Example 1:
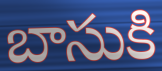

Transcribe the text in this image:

బాసుకి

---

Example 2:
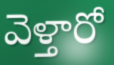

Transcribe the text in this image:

వెళ్తారో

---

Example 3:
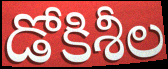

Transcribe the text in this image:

డోకిశీల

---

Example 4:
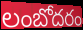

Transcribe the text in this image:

లంబోదరం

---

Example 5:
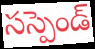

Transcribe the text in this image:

సస్పెండ్